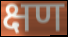
क्षण